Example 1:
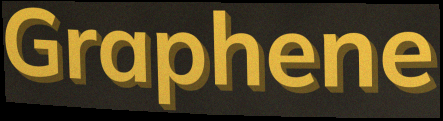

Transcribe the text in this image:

Graphene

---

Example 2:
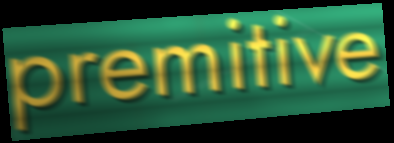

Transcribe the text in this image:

premitive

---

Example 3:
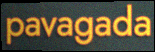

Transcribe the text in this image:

pavagada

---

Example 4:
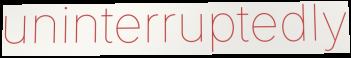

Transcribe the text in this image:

uninterruptedly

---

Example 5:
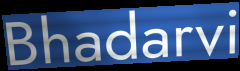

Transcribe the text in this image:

Bhadarvi